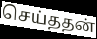
செய்ததன்